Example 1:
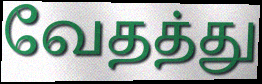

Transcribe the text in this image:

வேதத்து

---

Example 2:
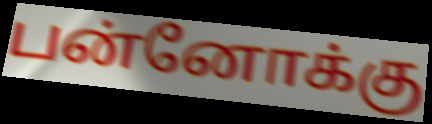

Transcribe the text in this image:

பன்னோக்கு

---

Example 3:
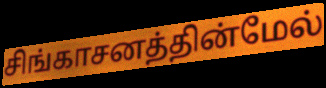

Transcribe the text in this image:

சிங்காசனத்தின்மேல்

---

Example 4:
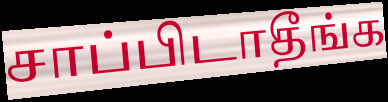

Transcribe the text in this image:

சாப்பிடாதீங்க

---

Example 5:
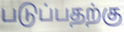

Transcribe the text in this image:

படுப்பதற்கு